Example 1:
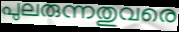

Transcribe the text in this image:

പുലരുന്നതുവരെ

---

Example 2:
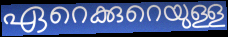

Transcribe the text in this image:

ഏറെക്കുറെയുള്ള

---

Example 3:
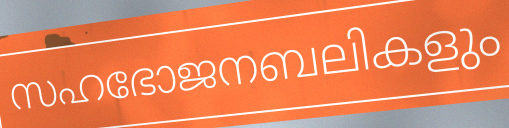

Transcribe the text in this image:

സഹഭോജനബലികളും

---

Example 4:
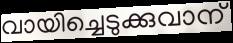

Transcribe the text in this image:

വായിച്ചെടുക്കുവാന്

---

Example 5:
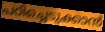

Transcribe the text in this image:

പഠിച്ചെടുക്കാൻ